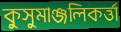
কুসুমাঞ্জলিকর্ত্তা